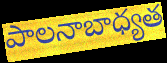
పాలనాబాధ్యత